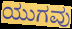
ಯುಗವು